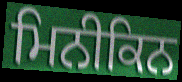
ਮਿਨੀਕਿਨ